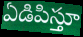
ఏడిపిస్తూ